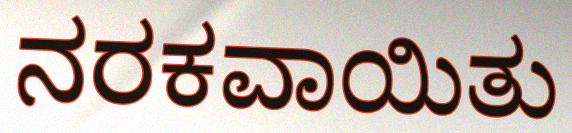
ನರಕವಾಯಿತು